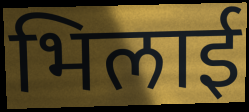
भिलाई